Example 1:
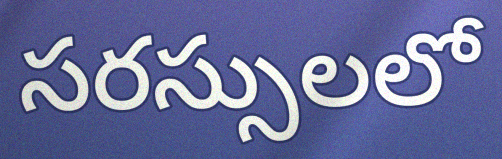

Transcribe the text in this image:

సరస్సులలో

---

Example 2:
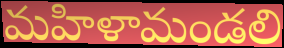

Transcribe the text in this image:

మహిళామండలి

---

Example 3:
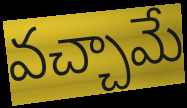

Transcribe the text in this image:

వచ్చామే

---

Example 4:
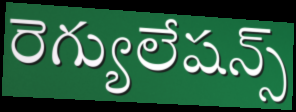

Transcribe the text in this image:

రెగ్యులేషన్స్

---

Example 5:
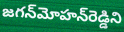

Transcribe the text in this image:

జగన్‌మోహన్‌రెడ్డిని